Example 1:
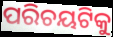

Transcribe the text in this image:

ପରିଚୟଟିକୁ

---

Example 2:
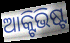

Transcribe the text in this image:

ଆକ୍ଟିଭିଷ୍ଟ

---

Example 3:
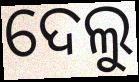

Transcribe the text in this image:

ଦେଲୁ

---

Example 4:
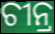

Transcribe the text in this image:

ଚୀନ୍ର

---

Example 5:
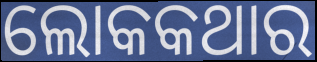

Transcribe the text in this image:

ଲୋକକଥାର